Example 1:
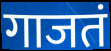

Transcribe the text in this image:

गाजतं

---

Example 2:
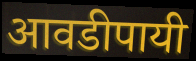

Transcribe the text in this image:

आवडीपायी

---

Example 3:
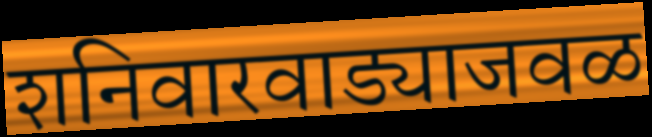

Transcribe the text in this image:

शनिवारवाड्याजवळ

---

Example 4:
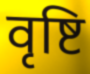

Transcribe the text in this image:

वृष्टि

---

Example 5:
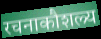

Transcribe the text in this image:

रचनाकौशल्य